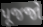
પૂજજો